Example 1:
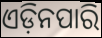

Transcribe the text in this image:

ଏଡ଼ିନପାରି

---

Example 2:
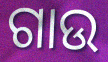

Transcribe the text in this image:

ଗାଉ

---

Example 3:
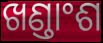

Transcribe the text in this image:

ଖଣ୍ଡାଂଶ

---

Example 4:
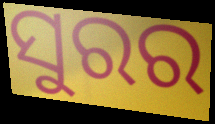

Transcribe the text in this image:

ସୁରର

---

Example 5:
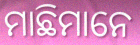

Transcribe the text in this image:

ମାଛିମାନେ